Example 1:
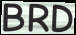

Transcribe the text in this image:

BRD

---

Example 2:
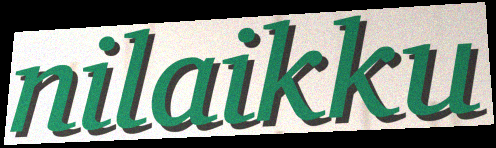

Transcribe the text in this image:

nilaikku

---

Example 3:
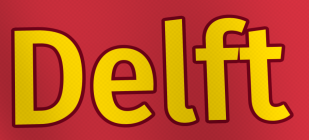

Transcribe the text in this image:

Delft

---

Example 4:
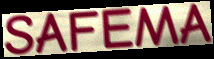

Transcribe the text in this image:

SAFEMA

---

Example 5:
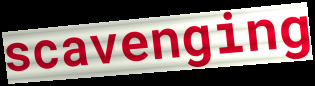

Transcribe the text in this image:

scavenging